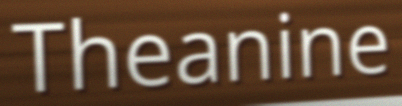
Theanine